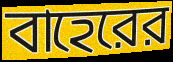
বাহেরের